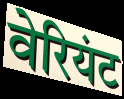
वेरियंट